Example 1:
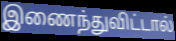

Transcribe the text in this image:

இணைந்துவிட்டால்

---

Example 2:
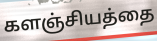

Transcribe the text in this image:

களஞ்சியத்தை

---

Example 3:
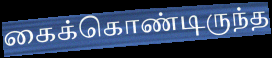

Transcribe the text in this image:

கைக்கொண்டிருந்த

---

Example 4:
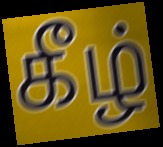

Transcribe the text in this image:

கீழ்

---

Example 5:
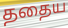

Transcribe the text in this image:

ததைய